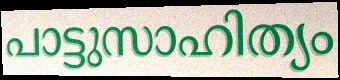
പാട്ടുസാഹിത്യം